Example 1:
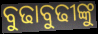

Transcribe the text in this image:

ବୁଢାବୁଢୀଙ୍କୁ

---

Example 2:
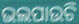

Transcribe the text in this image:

ଭଲପାଉଚି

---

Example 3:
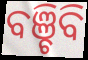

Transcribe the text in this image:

ବଞ୍ଚିବି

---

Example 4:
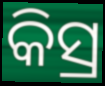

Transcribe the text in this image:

କିସ୍ର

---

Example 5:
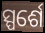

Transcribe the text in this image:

ସ୍ପର୍ଶେ